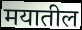
मयातील